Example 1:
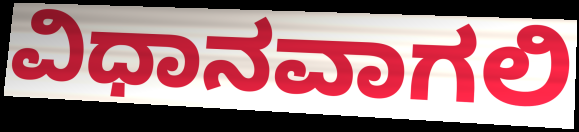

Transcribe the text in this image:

ವಿಧಾನವಾಗಲಿ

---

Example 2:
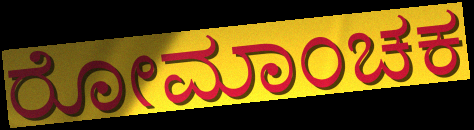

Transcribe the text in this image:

ರೋಮಾಂಚಕ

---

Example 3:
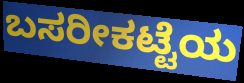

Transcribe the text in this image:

ಬಸರೀಕಟ್ಟೆಯ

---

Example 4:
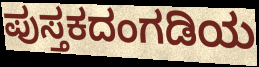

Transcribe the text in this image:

ಪುಸ್ತಕದಂಗಡಿಯ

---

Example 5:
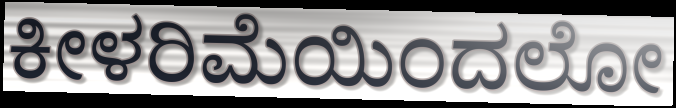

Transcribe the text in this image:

ಕೀಳರಿಮೆಯಿಂದಲೋ